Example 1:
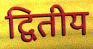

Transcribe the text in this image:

द्वितीय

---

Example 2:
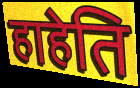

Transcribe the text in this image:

हाहेति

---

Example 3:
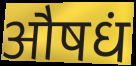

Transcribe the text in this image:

औषधं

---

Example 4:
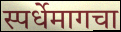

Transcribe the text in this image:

स्पर्धेमागचा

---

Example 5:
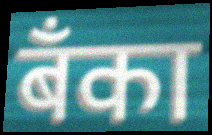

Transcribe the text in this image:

बॅंका